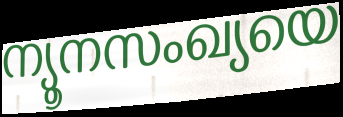
ന്യൂനസംഖ്യയെ